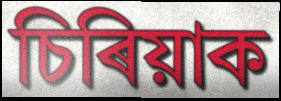
চিৰিয়াক